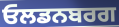
ਓਲਡਨਬਰਗ